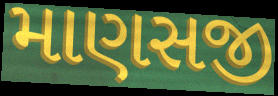
માણસજી